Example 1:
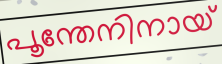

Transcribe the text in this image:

പൂന്തേനിനായ്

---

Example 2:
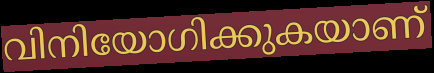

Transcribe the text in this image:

വിനിയോഗിക്കുകയാണ്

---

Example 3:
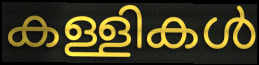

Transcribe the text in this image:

കള്ളികൾ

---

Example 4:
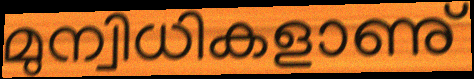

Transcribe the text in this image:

മുന്വിധികളാണു്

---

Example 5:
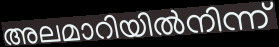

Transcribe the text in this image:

അലമാറിയിൽനിന്ന്